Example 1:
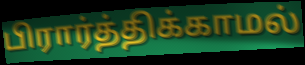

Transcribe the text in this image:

பிரார்த்திக்காமல்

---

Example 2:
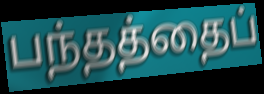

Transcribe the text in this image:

பந்தத்தைப்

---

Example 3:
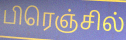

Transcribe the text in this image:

பிரெஞ்சில்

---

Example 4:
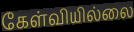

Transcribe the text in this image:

கேள்வியில்லை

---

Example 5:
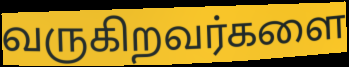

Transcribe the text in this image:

வருகிறவர்களை